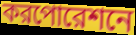
করপোরেশনে